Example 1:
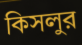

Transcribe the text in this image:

কিসলুর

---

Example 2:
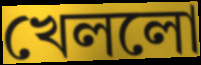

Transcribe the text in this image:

খেললো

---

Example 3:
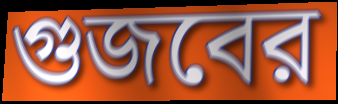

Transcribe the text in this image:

গুজবের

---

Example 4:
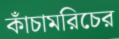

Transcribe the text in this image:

কাঁচামরিচের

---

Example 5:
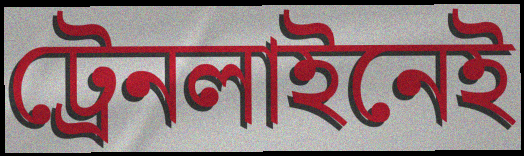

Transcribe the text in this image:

ট্রেনলাইনেই